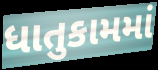
ધાતુકામમાં